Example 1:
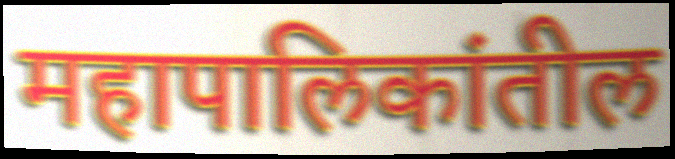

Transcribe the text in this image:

महापालिकांतील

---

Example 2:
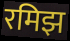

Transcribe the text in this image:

रमिझ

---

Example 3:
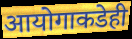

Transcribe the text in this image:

आयोगाकडेही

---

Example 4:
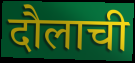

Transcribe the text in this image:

दौलाची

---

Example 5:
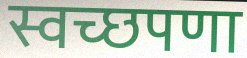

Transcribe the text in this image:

स्वच्छपणा